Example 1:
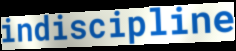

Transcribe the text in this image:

indiscipline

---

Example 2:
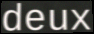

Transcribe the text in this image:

deux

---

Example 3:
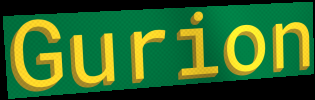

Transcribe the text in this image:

Gurion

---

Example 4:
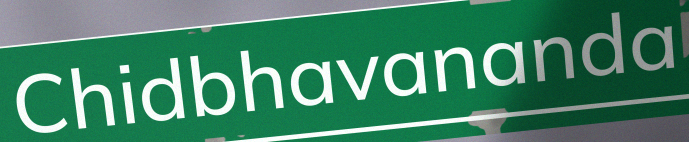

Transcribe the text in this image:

Chidbhavananda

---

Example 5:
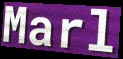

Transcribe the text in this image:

Marl